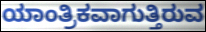
ಯಾಂತ್ರಿಕವಾಗುತ್ತಿರುವ